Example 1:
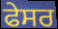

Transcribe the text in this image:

ਫੇਸਰ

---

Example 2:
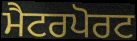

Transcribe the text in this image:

ਮੈਟਰਪੋਰਟ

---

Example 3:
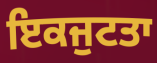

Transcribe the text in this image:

ਇਕਜੁਟਤਾ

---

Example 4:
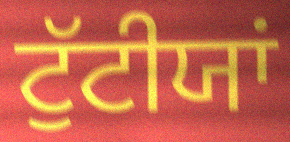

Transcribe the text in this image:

ਟੁੱਟੀਯਾਂ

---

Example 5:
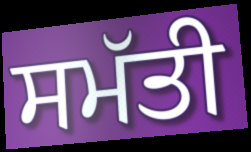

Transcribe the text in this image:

ਸਮੱਤੀ